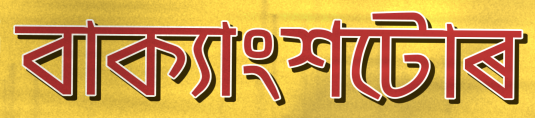
বাক্যাংশটোৰ